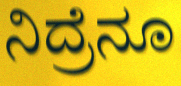
ನಿದ್ರೆನೂ